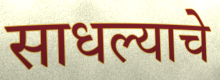
साधल्याचे